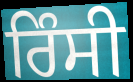
ਰਿੰਸੀ